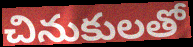
చినుకులతో